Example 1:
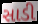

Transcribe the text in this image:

સાડી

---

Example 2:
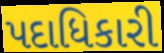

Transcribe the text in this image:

પદાધિકારી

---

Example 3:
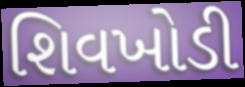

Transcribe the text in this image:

શિવખોડી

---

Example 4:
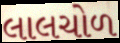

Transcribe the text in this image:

લાલચોળ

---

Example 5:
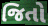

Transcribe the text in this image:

જિતો